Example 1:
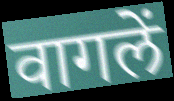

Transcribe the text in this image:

वागलें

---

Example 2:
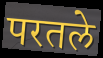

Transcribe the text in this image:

परतले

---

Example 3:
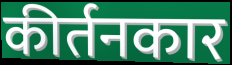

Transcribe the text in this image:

कीर्तनकार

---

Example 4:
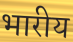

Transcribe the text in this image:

भारीय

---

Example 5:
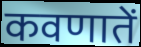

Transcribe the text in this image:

कवणातें